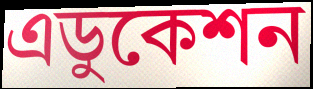
এডুকেশন